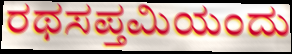
ರಥಸಪ್ತಮಿಯಂದು